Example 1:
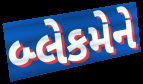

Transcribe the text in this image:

બ્લેકમેને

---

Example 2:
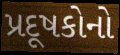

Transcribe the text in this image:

પ્રદૂષકોનો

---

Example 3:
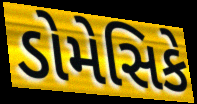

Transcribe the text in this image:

ડોમેસિકે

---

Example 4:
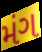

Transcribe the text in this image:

મંગ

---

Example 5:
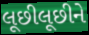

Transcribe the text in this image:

લૂછીલૂછીને